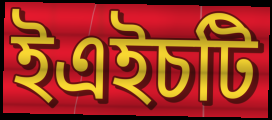
ইএইচটি